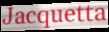
Jacquetta